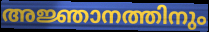
അജ്ഞാനത്തിനും